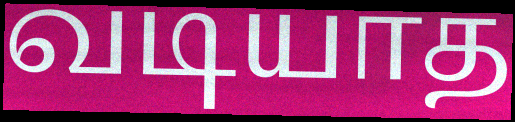
வடியாத